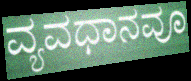
ವ್ಯವಧಾನವೂ